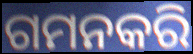
ଗମନକରି